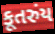
કૂતરુંય